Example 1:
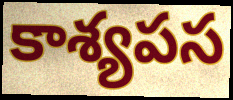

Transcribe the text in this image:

కాశ్యపస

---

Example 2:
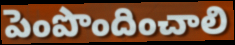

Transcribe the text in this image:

పెంపొందించాలి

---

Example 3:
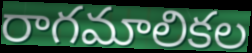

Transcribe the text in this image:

రాగమాలికల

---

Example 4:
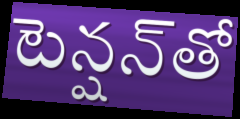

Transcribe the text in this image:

టెన్షన్‌తో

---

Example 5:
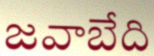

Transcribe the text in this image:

జవాబేది